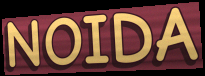
NOIDA